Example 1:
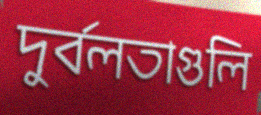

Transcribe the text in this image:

দুর্বলতাগুলি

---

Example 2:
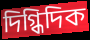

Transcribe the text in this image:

দিগ্ধিদিক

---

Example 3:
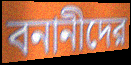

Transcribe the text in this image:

বনানীদের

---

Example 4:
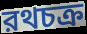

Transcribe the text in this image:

রথচক্র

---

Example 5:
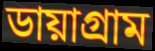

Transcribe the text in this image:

ডায়াগ্রাম